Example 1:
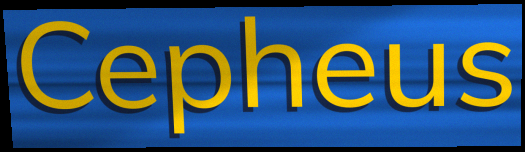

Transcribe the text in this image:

Cepheus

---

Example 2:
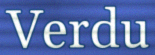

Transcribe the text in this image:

Verdu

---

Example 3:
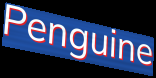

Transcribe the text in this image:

Penguine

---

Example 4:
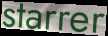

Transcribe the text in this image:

starrer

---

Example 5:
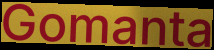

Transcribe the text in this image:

Gomanta